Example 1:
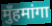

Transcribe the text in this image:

मुँहमांगा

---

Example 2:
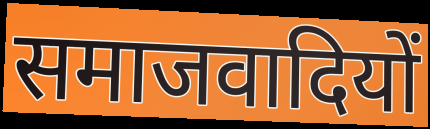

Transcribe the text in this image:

समाजवादियों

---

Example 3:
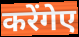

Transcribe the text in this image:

करेंगेए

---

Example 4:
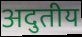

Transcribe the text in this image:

अदुतीय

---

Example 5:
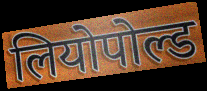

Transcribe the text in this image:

लियोपोल्ड